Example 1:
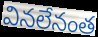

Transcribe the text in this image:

వినలేనంత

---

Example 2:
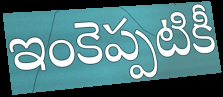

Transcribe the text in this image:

ఇంకెప్పటికీ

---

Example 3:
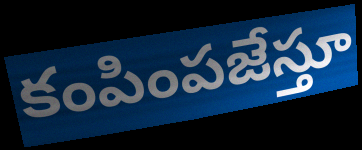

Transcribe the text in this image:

కంపింపజేస్తూ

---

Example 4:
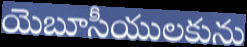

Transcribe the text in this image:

యెబూసీయులకును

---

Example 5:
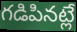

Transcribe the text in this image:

గడిపినట్లే